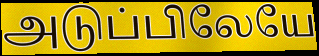
அடுப்பிலேயே